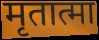
मृतात्मा